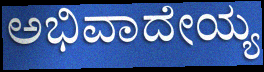
ಅಭಿವಾದೇಯ್ಯ